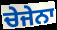
ਚੇਜੇਨਾ